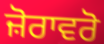
ਜ਼ੋਰਾਵਰੋ